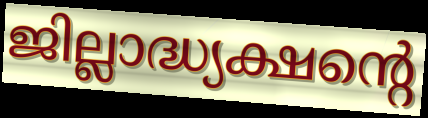
ജില്ലാദ്ധ്യക്ഷന്റെ